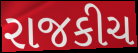
રાજકીચ